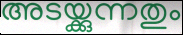
അടയ്ക്കുന്നതും